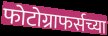
फोटोग्राफर्सच्या